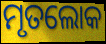
ମୃତଲୋକ